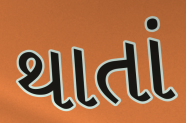
થાતાં